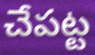
చేపట్ట